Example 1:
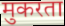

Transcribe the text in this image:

मुकरता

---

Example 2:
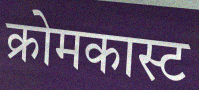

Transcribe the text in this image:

क्रोमकास्ट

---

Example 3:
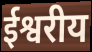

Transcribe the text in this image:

ईश्वरीय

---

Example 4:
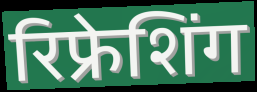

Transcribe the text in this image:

रिफ्रेशिंग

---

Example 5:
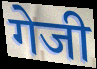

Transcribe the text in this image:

गेजी